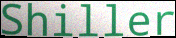
Shiller